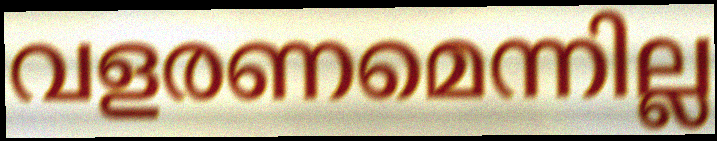
വളരണമെന്നില്ല